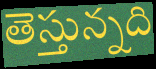
తెస్తున్నది